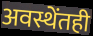
अवस्थेंतही